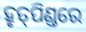
ହୃତ୍‌ପିଣ୍ଡରେ